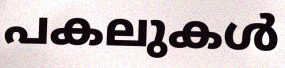
പകലുകൾ